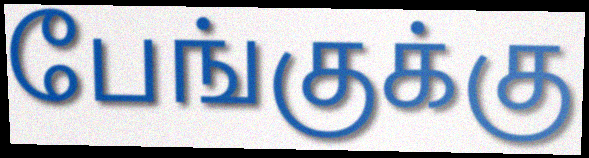
பேங்குக்கு